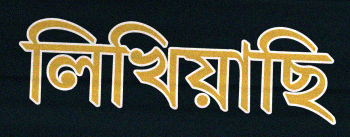
লিখিয়াছি